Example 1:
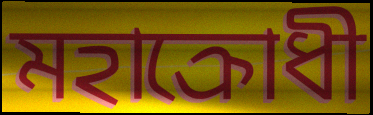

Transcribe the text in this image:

মহাক্রোধী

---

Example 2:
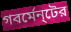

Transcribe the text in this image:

গবর্মেন্‌টের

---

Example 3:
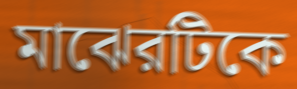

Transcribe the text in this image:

মাঝেরটিকে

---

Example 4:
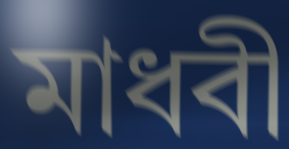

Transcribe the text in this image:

মাধবী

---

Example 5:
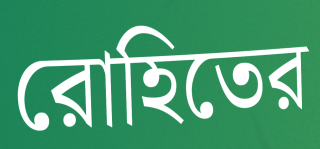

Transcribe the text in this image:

রোহিতের